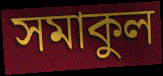
সমাকুল